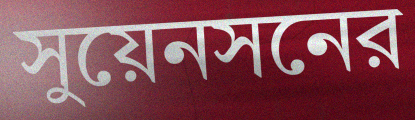
সুয়েনসনের